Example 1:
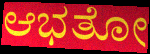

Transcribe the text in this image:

ಆಭತೋ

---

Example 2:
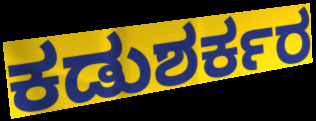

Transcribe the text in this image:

ಕಡುಶರ್ಕರ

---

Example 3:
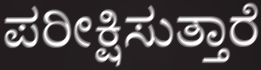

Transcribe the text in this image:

ಪರೀಕ್ಷಿಸುತ್ತಾರೆ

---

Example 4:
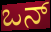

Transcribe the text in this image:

ಒನ್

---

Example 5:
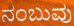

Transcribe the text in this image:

ನಂಬುವು